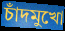
চাঁদমুখো